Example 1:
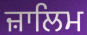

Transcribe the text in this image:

ਜ਼ਾਲਿਮ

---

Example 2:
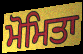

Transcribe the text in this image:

ਮੋਮਿਤਾ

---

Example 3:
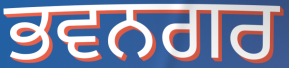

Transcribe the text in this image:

ਭਵਨਗਰ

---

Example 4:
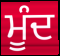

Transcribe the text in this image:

ਮੂੰਦ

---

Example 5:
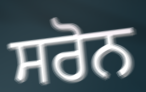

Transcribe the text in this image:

ਸਰੋਨ